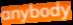
anybody